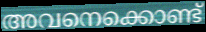
അവനെക്കൊണ്ട്